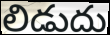
లిడుదు